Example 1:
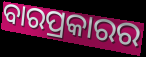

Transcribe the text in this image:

ବାରପ୍ରକାରର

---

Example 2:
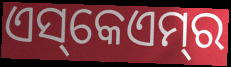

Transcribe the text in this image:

ଏସ୍‌କେଏମ୍‌ର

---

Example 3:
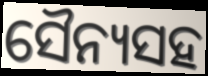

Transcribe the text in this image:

ସୈନ୍ୟସହ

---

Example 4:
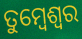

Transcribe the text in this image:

ତୁମ୍ବେଶ୍ଵର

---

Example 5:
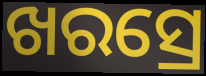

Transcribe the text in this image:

ଖରସ୍ରେ